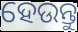
ହେଉନ୍ତୁ